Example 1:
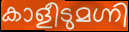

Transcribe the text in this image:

കാളീടുമഗ്നി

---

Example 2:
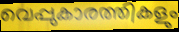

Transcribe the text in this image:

വെപ്പുകാരത്തികളും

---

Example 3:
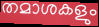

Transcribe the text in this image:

തമാശകളും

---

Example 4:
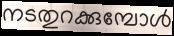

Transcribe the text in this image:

നടതുറക്കുമ്പോൾ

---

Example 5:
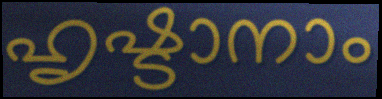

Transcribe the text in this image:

ഹൃഷ്ടാനാം